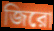
জিরো